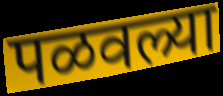
पळवल्या